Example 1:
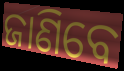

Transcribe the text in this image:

ଜାଣିବେ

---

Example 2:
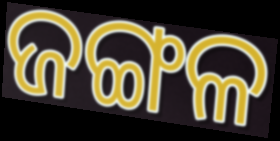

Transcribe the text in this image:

ଜଙ୍ଗଳ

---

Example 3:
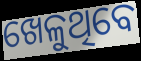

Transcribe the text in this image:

ଖେଳୁଥିବେ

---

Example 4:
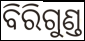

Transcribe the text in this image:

ବିରିଗୁଣ୍ଡ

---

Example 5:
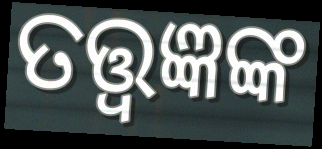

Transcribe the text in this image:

ତତ୍ତ୍ଵଜ୍ଞଙ୍କ